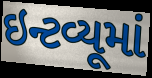
ઇન્ટવ્યૂમાં